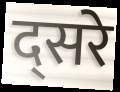
द्सरे